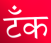
टॅंक